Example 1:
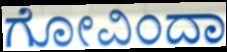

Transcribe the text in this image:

ಗೋವಿಂದಾ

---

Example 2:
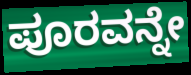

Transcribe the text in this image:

ಪೂರವನ್ನೇ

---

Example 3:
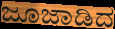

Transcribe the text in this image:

ಜೂಜಾಡಿದ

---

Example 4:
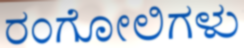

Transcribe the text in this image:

ರಂಗೋಲಿಗಳು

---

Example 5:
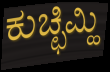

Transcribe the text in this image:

ಕುಚ್ಛಿಮ್ಹಿ